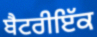
ਬੈਟਰੀਇੱਕ